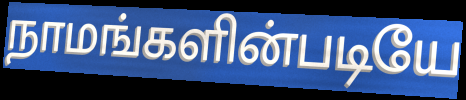
நாமங்களின்படியே